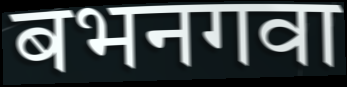
बभनगवा